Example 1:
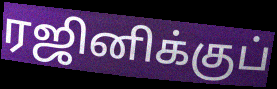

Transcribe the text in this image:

ரஜினிக்குப்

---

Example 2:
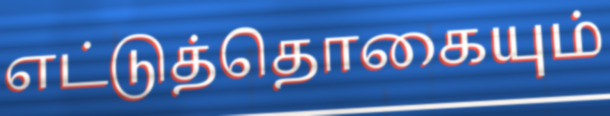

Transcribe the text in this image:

எட்டுத்தொகையும்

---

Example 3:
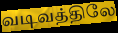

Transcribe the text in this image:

வடிவத்திலே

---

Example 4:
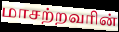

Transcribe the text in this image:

மாசற்றவரின்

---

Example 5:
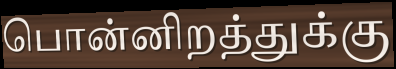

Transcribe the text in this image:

பொன்னிறத்துக்கு